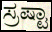
ಸ್ರಷ್ಟಾ